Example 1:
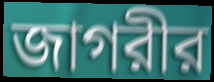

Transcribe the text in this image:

জাগরীর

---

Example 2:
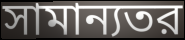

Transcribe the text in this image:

সামান্যতর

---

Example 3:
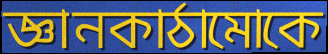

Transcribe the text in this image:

জ্ঞানকাঠামোকে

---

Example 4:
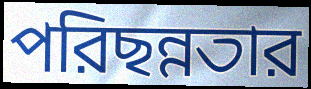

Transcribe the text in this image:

পরিছন্নতার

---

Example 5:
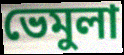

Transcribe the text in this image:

ভেমুলা